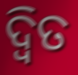
ଦ୍ୱିତ